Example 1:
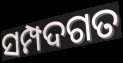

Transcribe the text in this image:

ସମ୍ପଦଗତ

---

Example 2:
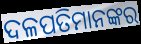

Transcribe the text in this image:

ଦଳପତିମାନଙ୍କର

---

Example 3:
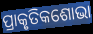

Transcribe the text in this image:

ପ୍ରାକୃତିକଶୋଭା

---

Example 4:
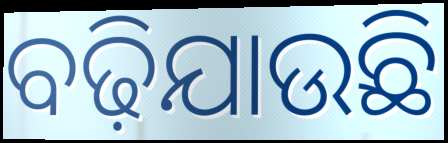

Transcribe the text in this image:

ବଢ଼ିଯାଉଛି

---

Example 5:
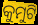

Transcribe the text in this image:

କୁମୁଟି